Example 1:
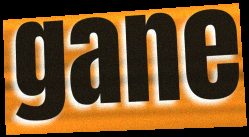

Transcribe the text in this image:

gane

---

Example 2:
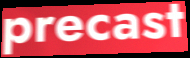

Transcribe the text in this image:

precast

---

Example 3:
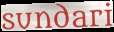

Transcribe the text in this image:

sundari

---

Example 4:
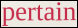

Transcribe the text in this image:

pertain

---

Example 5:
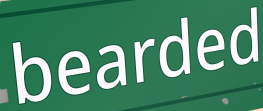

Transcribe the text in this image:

bearded